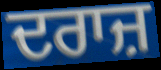
ਦਰਾਜ਼